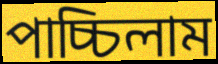
পাচ্চিলাম